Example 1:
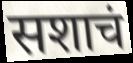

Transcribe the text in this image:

सशाचं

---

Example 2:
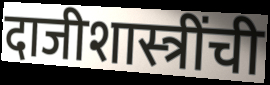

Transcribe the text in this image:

दाजीशास्त्रींची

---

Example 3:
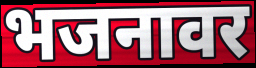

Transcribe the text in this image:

भजनावर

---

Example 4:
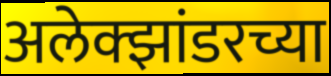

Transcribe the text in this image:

अलेक्झांडरच्या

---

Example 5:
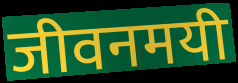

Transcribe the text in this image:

जीवनमयी